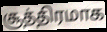
சூத்திரமாக